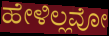
ಹೇಳಿಲ್ಲವೋ